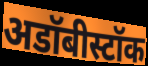
अडॉबीस्टॉक